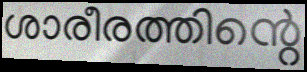
ശാരീരത്തിന്റെ